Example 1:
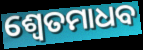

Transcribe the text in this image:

ଶ୍ୱେତମାଧବ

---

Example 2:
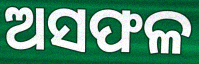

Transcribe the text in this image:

ଅସଫଳ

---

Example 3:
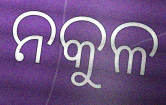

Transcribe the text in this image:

ନକୁଳ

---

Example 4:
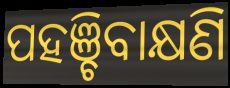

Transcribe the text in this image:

ପହଞ୍ଚିବାକ୍ଷଣି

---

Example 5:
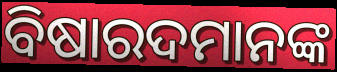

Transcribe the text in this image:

ବିଷାରଦମାନଙ୍କ